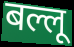
बल्लू